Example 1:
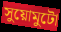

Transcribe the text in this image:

সুয়োমুটো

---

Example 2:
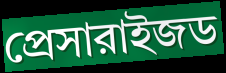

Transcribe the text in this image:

প্রেসারাইজড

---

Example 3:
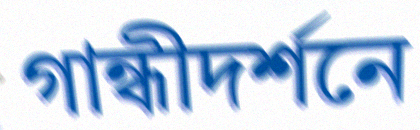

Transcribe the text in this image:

গান্ধীদর্শনে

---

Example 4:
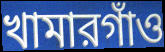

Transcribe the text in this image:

খামারগাঁও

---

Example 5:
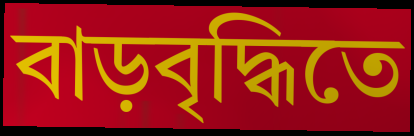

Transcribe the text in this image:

বাড়বৃদ্ধিতে